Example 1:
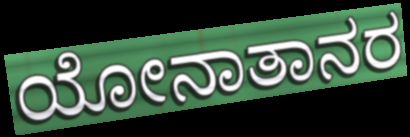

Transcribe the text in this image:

ಯೋನಾತಾನರ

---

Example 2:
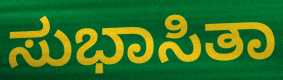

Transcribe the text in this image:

ಸುಭಾಸಿತಾ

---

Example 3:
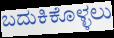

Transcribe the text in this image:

ಬದುಕಿಕೊಳ್ಳಲು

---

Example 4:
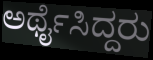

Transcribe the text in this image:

ಅರ್ಥೈಸಿದ್ದರು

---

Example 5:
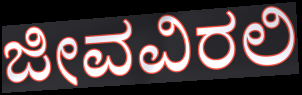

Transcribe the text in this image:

ಜೀವವಿರಲಿ